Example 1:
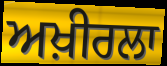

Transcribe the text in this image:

ਅਖ਼ੀਰਲਾ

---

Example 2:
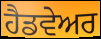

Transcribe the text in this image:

ਹੈਡਵੇਅਰ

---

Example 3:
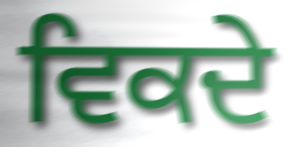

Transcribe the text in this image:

ਵਿਕਦੇ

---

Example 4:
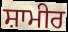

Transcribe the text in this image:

ਸ਼ਾਮੀਰ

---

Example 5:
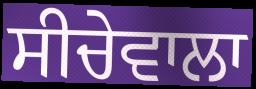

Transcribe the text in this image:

ਸੀਚੇਵਾਲਾ